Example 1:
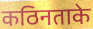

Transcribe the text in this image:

कठिनताके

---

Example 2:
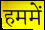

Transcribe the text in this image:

हममें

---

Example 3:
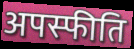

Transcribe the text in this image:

अपस्फीति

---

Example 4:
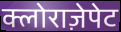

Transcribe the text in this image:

क्लोराज़ेपेट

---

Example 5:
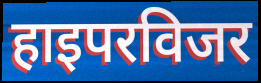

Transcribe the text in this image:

हाइपरविजर